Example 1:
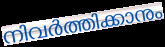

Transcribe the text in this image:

നിവർത്തിക്കാനും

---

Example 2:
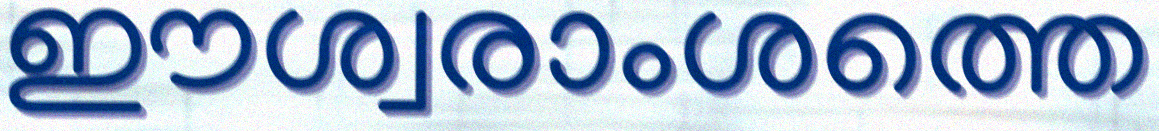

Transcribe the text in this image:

ഈശ്വരാംശത്തെ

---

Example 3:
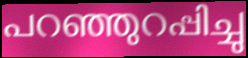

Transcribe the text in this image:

പറഞ്ഞുറപ്പിച്ചു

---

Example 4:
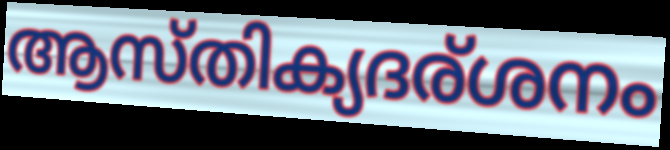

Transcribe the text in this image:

ആസ്തിക്യദര്ശനം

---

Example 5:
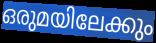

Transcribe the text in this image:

ഒരുമയിലേക്കും